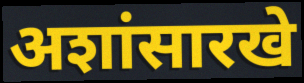
अशांसारखे